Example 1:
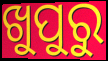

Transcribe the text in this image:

ଖୁପୁରୁ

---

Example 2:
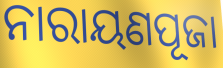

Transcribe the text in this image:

ନାରାୟଣପୂଜା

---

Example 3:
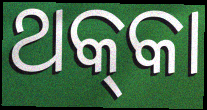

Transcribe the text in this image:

ଥକ୍‌କା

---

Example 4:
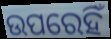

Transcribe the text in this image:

ଉପରେହିଁ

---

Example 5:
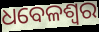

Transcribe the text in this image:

ଧବେଳଶ୍ୱର